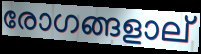
രോഗങ്ങളാല്